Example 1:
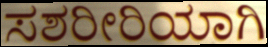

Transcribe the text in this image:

ಸಶರೀರಿಯಾಗಿ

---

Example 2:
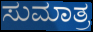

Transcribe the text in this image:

ಸುಮಾತ್ರ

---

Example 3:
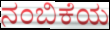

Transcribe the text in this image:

ನಂಬಿಕೆಯ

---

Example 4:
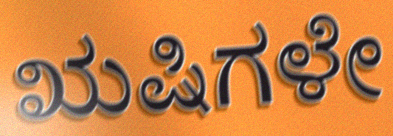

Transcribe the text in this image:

ಋಷಿಗಳೇ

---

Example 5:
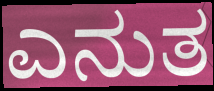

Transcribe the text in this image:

ಎನುತ